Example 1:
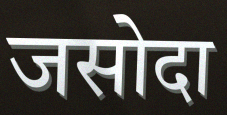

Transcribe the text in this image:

जसोदा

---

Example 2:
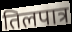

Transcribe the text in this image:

तिलपात्र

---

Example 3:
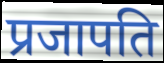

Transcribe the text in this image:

प्रजापति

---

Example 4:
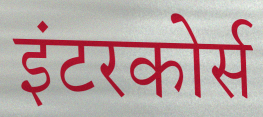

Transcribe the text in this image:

इंटरकोर्स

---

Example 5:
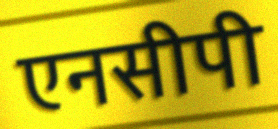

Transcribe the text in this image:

एनसीपी